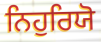
ਨਿਹੁਰਿਯੋ